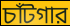
চাঁটগার